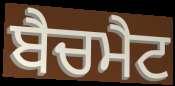
ਬੈਚਮੈਟ